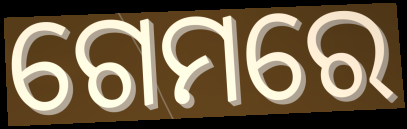
ଗେମରେ